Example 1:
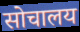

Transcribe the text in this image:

सोचालय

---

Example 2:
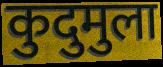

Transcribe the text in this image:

कुदुमुला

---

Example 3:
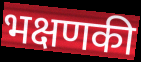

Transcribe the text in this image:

भक्षणकी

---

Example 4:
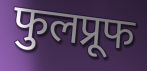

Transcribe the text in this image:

फुलप्रूफ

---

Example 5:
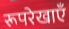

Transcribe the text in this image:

रूपरेखाएँ